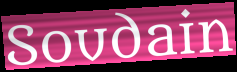
Soudain